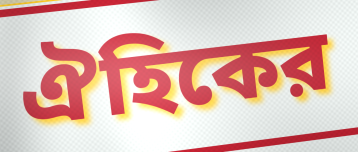
ঐহিকের